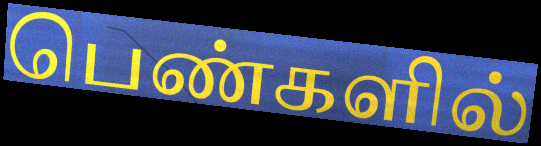
பெண்களில்